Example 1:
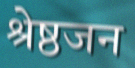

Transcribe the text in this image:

श्रेष्ठजन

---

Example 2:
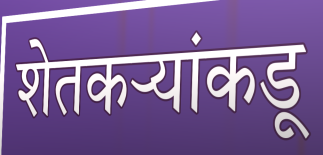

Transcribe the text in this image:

शेतकऱ्यांकडू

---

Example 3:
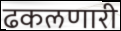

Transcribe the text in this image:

ढकलणारी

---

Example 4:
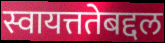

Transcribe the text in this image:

स्वायत्ततेबद्दल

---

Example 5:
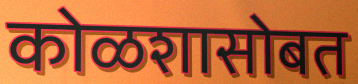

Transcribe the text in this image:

कोळशासोबत